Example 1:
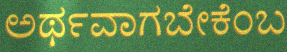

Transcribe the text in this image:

ಅರ್ಥವಾಗಬೇಕೆಂಬ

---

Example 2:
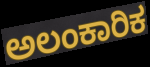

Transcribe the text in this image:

ಅಲಂಕಾರಿಕ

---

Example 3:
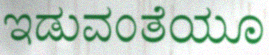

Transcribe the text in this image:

ಇಡುವಂತೆಯೂ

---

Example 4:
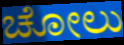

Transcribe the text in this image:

ಚೋಲು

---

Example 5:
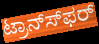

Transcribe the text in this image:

ಟ್ರಾನ್ಸ್‍ಫರ್